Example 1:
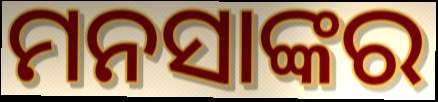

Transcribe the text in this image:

ମନସାଙ୍କର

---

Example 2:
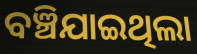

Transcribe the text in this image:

ବଞ୍ଚିଯାଇଥିଲା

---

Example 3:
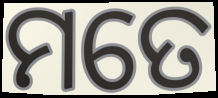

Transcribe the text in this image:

ମତେ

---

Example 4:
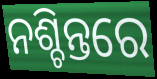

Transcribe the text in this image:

ନଶ୍ଚିନ୍ତରେ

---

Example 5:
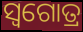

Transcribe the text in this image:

ସ୍ୱଗୋତ୍ର